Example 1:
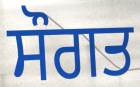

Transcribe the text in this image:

ਸੌਗਤ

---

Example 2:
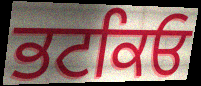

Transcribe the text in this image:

ਭਟਕਿਓ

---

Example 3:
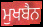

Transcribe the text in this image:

ਮੁਖਬੈਨ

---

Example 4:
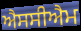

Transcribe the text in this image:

ਐਸਸੀਐਮ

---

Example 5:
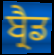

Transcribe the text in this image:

ਬ੍ਰੈਡ